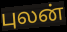
புலன்